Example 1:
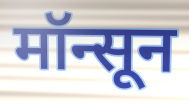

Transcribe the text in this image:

मॉन्सून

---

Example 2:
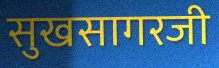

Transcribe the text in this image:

सुखसागरजी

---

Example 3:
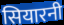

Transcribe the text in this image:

सियारनी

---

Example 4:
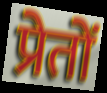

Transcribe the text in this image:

प्रेतों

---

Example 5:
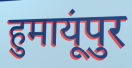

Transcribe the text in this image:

हुमायूंपुर